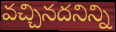
వచ్చినదనిన్ని